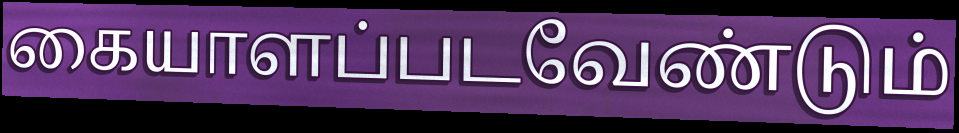
கையாளப்படவேண்டும்